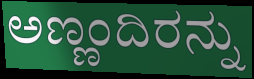
ಅಣ್ಣಂದಿರನ್ನು